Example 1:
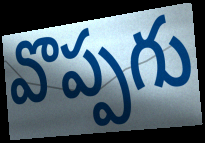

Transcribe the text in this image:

వొప్పగు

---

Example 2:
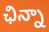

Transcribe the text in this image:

ఛిన్నా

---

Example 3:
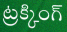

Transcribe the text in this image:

ట్రక్కింగ్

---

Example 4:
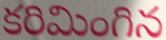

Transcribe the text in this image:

కరిమింగిన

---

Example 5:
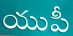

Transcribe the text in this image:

యుపీ